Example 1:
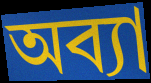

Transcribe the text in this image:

অব্যা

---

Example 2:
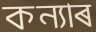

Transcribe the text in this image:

কন্যাৰ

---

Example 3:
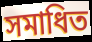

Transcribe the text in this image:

সমাধিত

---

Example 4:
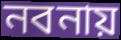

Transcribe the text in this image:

নবনায়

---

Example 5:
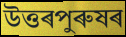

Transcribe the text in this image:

উত্তৰপুৰুষৰ